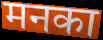
मनका